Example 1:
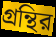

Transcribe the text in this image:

গ্রন্থির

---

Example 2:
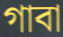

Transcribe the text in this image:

গাবা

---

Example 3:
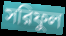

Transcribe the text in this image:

সরিফুল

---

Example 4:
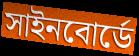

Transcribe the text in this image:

সাইনবোর্ডে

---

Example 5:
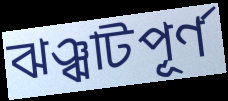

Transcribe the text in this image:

ঝঞ্ঝাটপূর্ণ